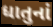
ધાતુનાં